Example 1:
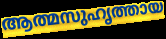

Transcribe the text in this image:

ആത്മസുഹൃത്തായ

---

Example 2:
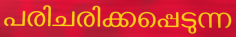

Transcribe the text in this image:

പരിചരിക്കപ്പെടുന്ന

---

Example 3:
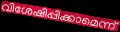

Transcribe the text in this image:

വിശേഷിപ്പിക്കാമെന്ന്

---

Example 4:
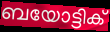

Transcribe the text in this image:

ബയോട്ടിക്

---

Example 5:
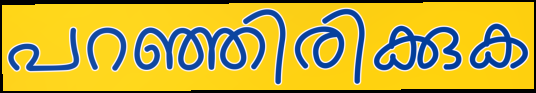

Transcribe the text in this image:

പറഞ്ഞിരിക്കുക